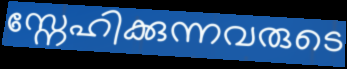
സ്നേഹിക്കുന്നവരുടെ